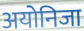
अयोनिजा